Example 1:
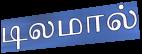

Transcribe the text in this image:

டிலமால்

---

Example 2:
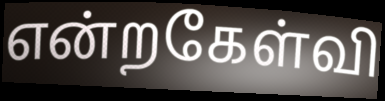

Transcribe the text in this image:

என்றகேள்வி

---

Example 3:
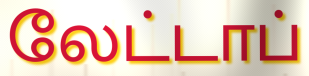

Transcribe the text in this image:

லேட்டாப்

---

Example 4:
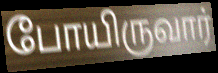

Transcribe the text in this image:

போயிருவார்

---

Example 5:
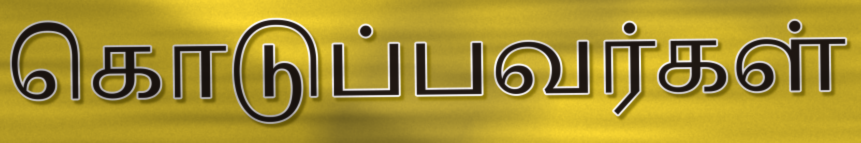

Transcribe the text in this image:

கொடுப்பவர்கள்